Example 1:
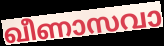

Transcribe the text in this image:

ഖീണാസവാ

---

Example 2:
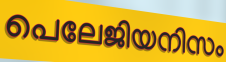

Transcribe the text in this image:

പെലേജിയനിസം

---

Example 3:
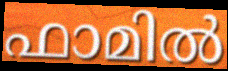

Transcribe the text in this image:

ഫാമിൽ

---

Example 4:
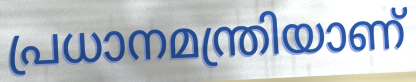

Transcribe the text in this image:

പ്രധാനമന്ത്രിയാണ്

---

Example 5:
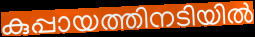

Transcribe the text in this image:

കുപ്പായത്തിനടിയിൽ